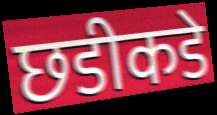
छडीकडे